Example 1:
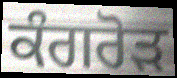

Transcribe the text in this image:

ਕੰਗਰੋੜ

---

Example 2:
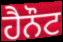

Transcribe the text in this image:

ਹੈਨੌਟ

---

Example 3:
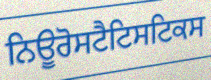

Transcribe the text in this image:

ਨਿਊਰੋਸਟੈਟਿਸਟਿਕਸ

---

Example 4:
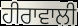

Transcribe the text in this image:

ਹੀਰਾਵਾਲੀ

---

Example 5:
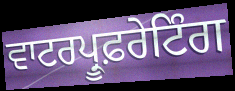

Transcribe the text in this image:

ਵਾਟਰਪ੍ਰੂਫ਼ਰੇਟਿੰਗ